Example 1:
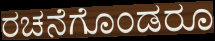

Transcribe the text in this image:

ರಚನೆಗೊಂಡರೂ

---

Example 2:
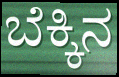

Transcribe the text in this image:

ಬೆಕ್ಕಿನ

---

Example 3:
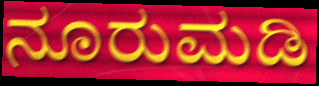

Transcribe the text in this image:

ನೂರುಮಡಿ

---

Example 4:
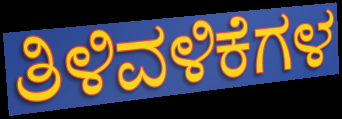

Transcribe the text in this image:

ತಿಳಿವಳಿಕೆಗಳ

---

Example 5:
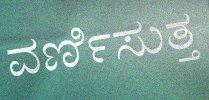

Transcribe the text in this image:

ವರ್ಣಿಸುತ್ತ